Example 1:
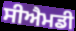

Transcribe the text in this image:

ਸੀਐਮਡੀ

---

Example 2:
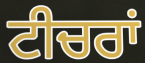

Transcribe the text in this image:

ਟੀਚਰਾਂ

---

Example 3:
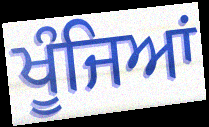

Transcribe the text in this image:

ਖੂੰਜਿਆਂ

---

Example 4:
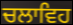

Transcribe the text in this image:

ਚਲਾਵਿਹ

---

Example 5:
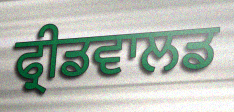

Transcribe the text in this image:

ਫ੍ਰੀਡਵਾਲਡ